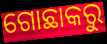
ଗୋଛାକରୁ